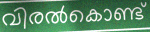
വിരൽകൊണ്ട്